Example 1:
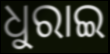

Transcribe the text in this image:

ଧୁରାଇ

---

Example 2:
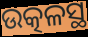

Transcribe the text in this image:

ଉତ୍କଳସ୍ଥ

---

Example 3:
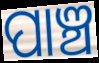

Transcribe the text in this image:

ପାଞ୍ଚ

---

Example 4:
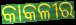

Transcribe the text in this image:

କାକଳୀର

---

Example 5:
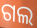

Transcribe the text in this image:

ଗଲ